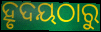
ହୃଦୟଠାରୁ